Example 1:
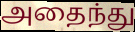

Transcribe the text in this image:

அதைந்து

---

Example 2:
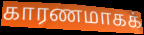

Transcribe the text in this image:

காரணமாகக்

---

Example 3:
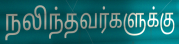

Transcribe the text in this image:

நலிந்தவர்களுக்கு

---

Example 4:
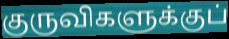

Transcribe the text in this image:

குருவிகளுக்குப்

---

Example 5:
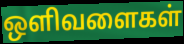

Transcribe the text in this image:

ஒளிவளைகள்